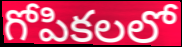
గోపికలలో